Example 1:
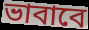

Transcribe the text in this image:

ভাবাবে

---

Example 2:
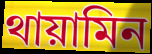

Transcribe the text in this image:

থায়ামিন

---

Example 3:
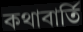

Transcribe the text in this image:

কথাবার্তি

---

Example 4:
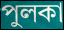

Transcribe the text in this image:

পুলকা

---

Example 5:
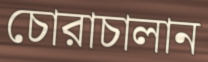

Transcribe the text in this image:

চোরাচালান